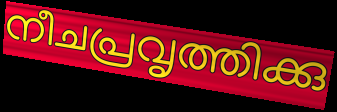
നീചപ്രവൃത്തിക്കു